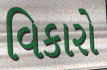
વિકારો